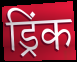
ड्रिंक